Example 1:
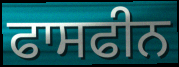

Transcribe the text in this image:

ਫਾਸਫੀਨ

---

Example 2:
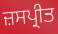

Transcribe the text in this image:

ਜ਼ਸਪ੍ਰੀਤ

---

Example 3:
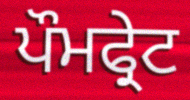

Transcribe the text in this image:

ਪੌਮਫ੍ਰੇਟ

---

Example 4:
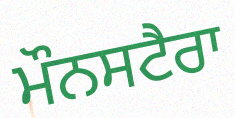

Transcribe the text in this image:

ਮੌਨਸਟੈਰਾ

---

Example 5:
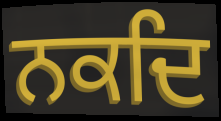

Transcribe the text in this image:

ਨਕਦਿ